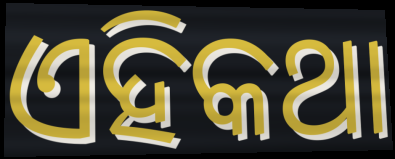
ଏହିକଥା